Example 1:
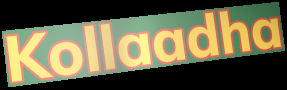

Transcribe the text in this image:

Kollaadha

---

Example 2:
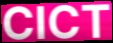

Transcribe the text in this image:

CICT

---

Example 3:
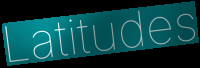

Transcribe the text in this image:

Latitudes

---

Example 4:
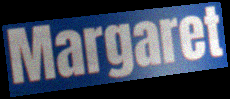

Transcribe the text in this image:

Margaret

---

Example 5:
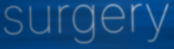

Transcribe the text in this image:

surgery